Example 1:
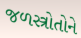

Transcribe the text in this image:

જળસ્ત્રોતોને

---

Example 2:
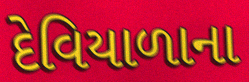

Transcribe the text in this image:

દેવિયાળાના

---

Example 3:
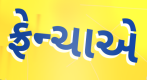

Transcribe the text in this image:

ફ્રેન્ચાએ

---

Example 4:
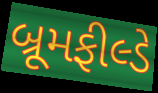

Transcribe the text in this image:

બ્રૂમફીલ્ડે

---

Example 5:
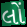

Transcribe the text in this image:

લોં